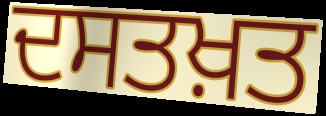
ਦਸਤਖ਼ਤ